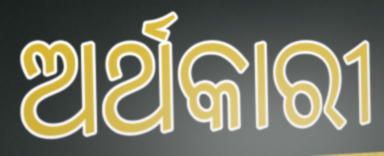
ଅର୍ଥକାରୀ